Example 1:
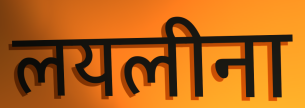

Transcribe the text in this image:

लयलीना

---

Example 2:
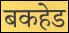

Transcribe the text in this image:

बकहेड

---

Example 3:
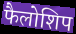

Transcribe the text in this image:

फैलोशिप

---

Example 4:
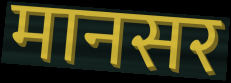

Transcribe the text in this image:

मानसर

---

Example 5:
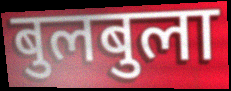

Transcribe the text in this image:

बुलबुला